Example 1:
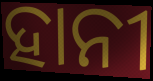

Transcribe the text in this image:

ହାନୀ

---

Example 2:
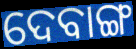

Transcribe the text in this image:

ଦେବାଙ୍ଗ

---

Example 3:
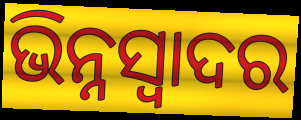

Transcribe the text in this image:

ଭିନ୍ନସ୍ବାଦର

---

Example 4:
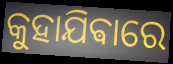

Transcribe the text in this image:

କୁହାଯିଵାରେ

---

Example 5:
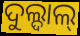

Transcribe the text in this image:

ଦୁଲ୍ଦାଲ୍